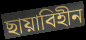
ছায়াবিহীন